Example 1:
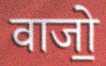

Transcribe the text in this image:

वाजो॒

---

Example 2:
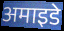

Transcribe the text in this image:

अमाइडे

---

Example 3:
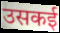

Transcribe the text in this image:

उसकई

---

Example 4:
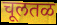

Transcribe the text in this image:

चूलतळ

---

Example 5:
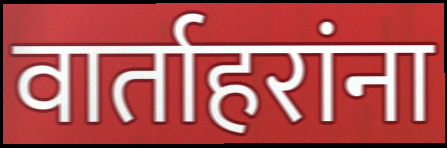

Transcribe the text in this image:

वार्ताहरांना